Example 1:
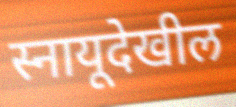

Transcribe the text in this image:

स्नायूदेखील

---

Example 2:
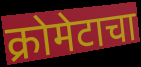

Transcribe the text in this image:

क्रोमेटाचा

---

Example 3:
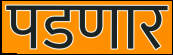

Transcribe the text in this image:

पडणार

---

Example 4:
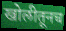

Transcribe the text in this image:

खोलीतूनच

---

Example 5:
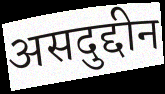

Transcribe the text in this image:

असदुद्दीन